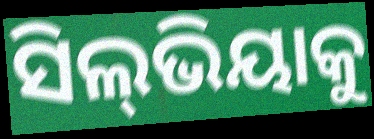
ସିଲ୍‍ଭିୟାକୁ